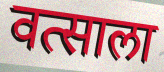
वत्साला